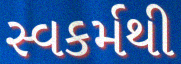
સ્વકર્મથી